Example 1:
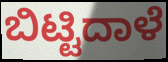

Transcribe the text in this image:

ಬಿಟ್ಟಿದಾಳೆ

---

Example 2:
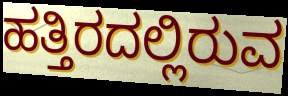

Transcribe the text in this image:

ಹತ್ತಿರದಲ್ಲಿರುವ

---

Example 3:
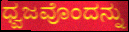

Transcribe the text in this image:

ಧ್ವಜವೊಂದನ್ನು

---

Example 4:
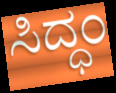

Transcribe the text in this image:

ಸಿದ್ಧಂ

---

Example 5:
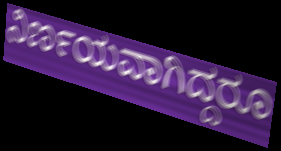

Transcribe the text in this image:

ನಿರ್ಣಯವಾಗಿದ್ದರೂ